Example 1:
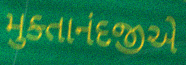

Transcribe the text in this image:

મુક્તાનંદજીએ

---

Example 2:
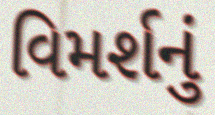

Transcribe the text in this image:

વિમર્શનું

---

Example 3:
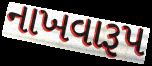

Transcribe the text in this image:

નાખવારૂપ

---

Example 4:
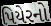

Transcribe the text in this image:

પિયેરનો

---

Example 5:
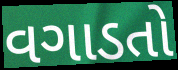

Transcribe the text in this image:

વગાડતો